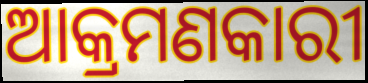
ଆକ୍ରମଣକାରୀ